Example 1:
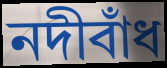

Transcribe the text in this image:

নদীবাঁধ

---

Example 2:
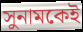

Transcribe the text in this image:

সুনামকেই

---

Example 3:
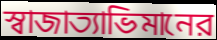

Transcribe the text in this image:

স্বাজাত্যাভিমানের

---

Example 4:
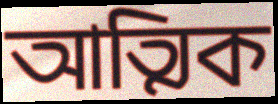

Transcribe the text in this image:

আত্মিক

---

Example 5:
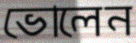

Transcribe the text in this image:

ভোলেন